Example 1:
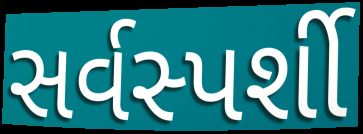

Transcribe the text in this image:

સર્વસ્પર્શી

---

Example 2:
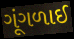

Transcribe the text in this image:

ગૂંગળાઈ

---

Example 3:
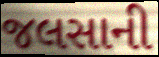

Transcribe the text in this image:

જલસાની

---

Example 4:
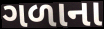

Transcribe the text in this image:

ગળાના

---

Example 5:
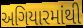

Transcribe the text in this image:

અગિયારમાંથી